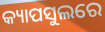
କ୍ୟାପସୁଲରେ